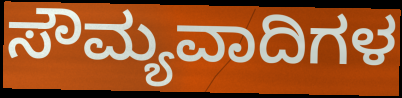
ಸೌಮ್ಯವಾದಿಗಳ